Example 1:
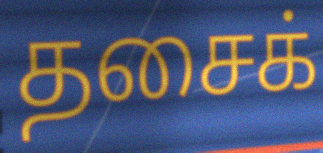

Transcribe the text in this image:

தசைக்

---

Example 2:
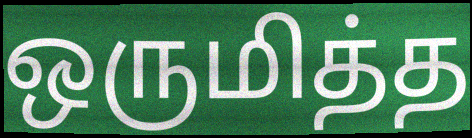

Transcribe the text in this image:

ஒருமித்த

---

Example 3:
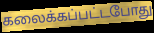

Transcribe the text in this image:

கலைக்கப்பட்டபோது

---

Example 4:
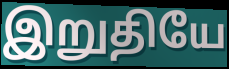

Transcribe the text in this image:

இறுதியே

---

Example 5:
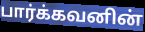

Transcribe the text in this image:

பார்க்கவனின்